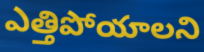
ఎత్తిపోయాలని